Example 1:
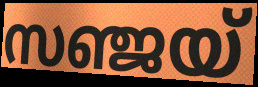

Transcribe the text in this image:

സഞ്ജയ്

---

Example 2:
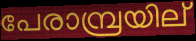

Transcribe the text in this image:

പേരാമ്പ്രയില്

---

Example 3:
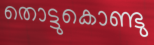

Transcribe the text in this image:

തൊട്ടുകൊണ്ടു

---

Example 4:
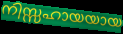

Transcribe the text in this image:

നിസ്സഹായയായ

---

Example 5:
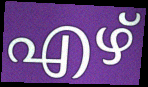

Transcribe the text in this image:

എഴ്